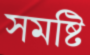
সমষ্টি